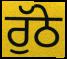
ਰੁੱਠੇ